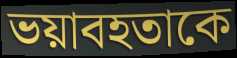
ভয়াবহতাকে